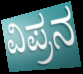
ವಿಪ್ರನ